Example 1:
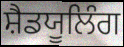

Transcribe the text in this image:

ਸ਼ੈਡਯੂਲਿੰਗ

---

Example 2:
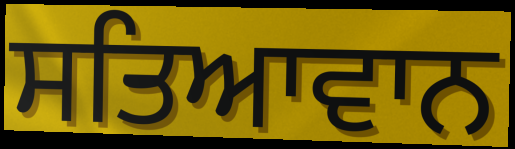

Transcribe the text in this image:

ਸਤਿਆਵਾਨ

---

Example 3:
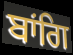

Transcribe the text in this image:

ਬਾਂਗਿ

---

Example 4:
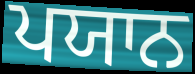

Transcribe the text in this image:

ਪਯਾਨ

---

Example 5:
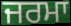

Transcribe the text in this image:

ਜਰਮਾ